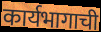
कार्यभागाची